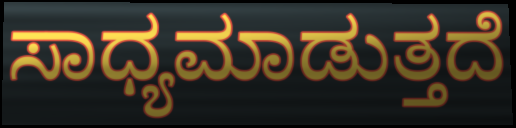
ಸಾಧ್ಯಮಾಡುತ್ತದೆ